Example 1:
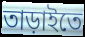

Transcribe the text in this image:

তাড়াইতে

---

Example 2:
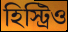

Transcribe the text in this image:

হিস্ট্রিও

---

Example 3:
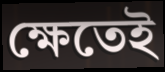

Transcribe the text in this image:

ক্ষেতেই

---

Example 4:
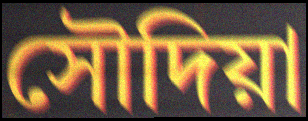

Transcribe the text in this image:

সৌদিয়া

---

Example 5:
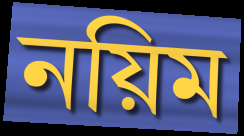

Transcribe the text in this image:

নয়িম